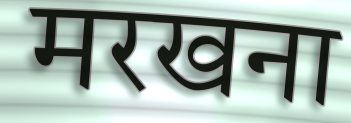
मरखना